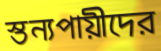
স্তন্যপায়ীদের